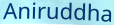
Aniruddha